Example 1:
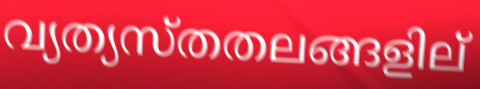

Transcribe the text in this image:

വ്യത്യസ്തതലങ്ങളില്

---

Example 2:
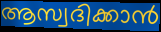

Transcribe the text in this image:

ആസ്വദിക്കാൻ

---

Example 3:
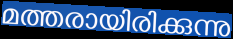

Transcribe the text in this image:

മത്തരായിരിക്കുന്നു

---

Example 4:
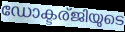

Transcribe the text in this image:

ഡോക്ടര്ജിയുടെ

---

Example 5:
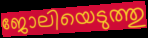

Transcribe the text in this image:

ജോലിയെടുത്തു